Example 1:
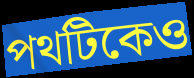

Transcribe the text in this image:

পথটিকেও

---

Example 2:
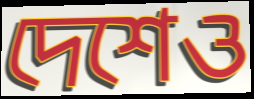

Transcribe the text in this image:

দেশেও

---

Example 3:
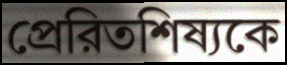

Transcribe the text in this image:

প্রেরিতশিষ্যকে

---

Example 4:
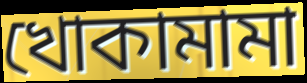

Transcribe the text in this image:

খোকামামা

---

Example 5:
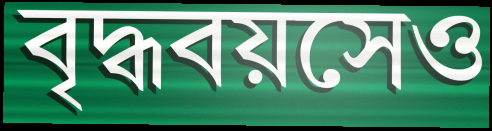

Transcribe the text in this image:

বৃদ্ধবয়সেও